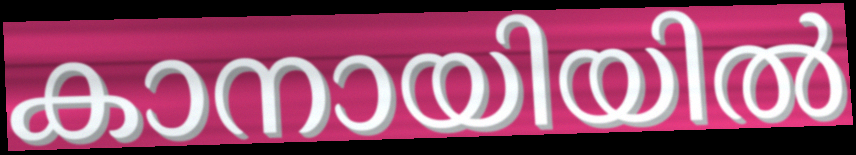
കാനായിയിൽ